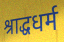
श्राद्धधर्म